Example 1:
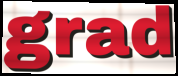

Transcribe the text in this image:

grad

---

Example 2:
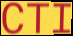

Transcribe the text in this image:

CTI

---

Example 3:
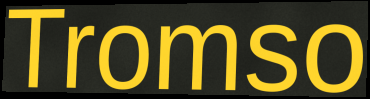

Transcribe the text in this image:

Tromso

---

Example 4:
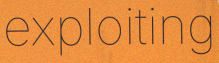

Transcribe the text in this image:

exploiting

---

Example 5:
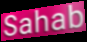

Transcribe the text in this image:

Sahab